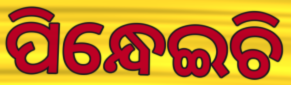
ପିନ୍ଧେଇଚି